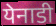
येनाडी